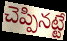
చెప్పినట్టే